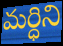
మర్ధిని